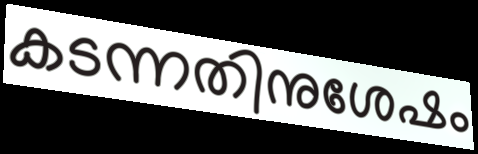
കടന്നതിനുശേഷം